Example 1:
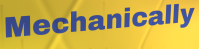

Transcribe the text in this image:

Mechanically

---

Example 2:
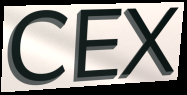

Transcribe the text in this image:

CEX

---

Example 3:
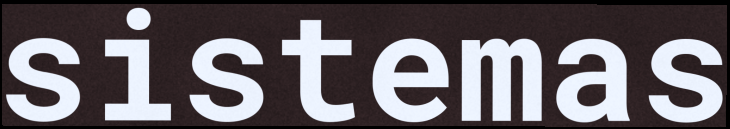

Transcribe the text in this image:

sistemas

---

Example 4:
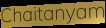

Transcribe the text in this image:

Chaitanyam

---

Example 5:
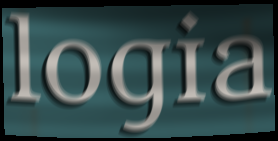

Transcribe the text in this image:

logia